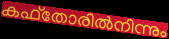
കഫ്തോരിൽനിന്നും